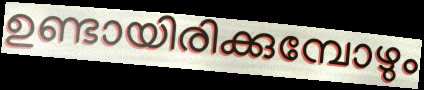
ഉണ്ടായിരിക്കുമ്പോഴും